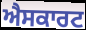
ਐਸਕਾਰਟ